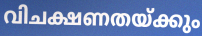
വിചക്ഷണതയ്ക്കും